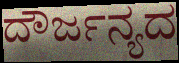
ದೌರ್ಜನ್ಯದ